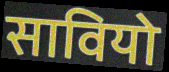
सावियो